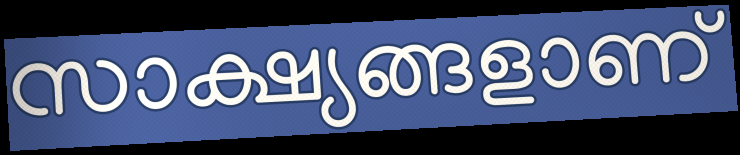
സാക്ഷ്യങ്ങളാണ്